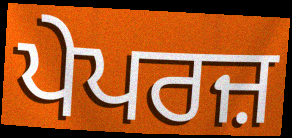
ਪੇਪਰਜ਼